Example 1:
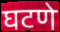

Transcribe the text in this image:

घटणे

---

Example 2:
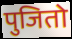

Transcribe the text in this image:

पुजितो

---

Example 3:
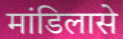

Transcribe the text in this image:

मांडिलासे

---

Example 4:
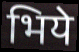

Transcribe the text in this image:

भिये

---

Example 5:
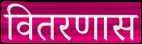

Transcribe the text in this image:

वितरणास